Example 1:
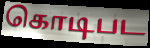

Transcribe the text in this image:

கொடிபட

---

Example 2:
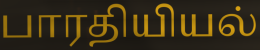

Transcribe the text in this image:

பாரதியியல்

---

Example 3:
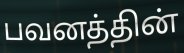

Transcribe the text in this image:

பவனத்தின்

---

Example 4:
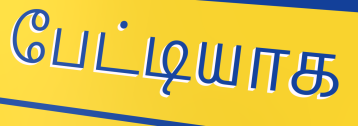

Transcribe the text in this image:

பேட்டியாக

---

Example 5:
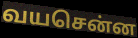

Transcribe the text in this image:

வயசென்ன